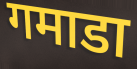
गमाडा